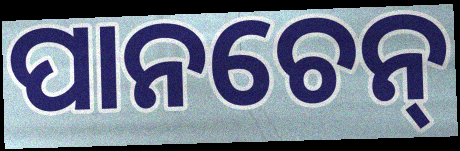
ପାନଚେନ୍